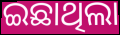
ଇଛାଥିଲା